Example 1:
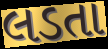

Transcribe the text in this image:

લડતા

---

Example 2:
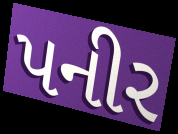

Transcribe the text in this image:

પનીર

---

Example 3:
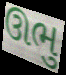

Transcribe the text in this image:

ઊભુ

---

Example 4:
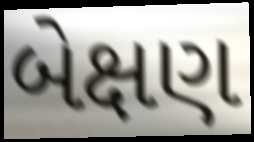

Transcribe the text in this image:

બેક્ષણ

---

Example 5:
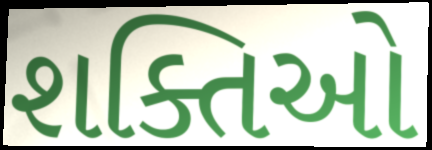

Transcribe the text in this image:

શક્તિઓ